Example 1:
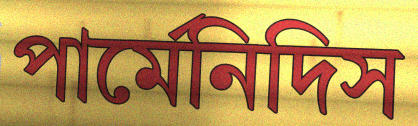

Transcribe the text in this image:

পার্মেনিদিস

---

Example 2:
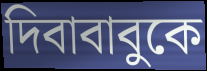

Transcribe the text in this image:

দিবাবাবুকে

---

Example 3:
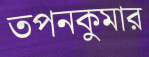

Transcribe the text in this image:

তপনকুমার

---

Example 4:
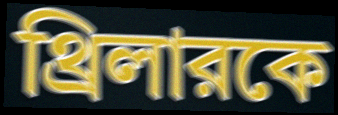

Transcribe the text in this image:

থ্রিলারকে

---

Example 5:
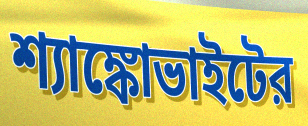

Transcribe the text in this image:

শ্যাঙ্কোভাইটের